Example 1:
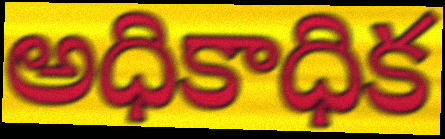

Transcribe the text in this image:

అధికాధిక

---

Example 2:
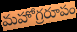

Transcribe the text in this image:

మహోగ్రరూపం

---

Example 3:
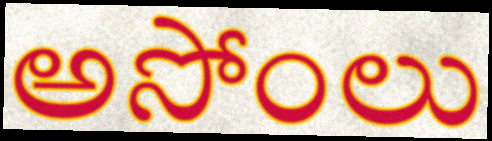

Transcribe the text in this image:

అసోంలు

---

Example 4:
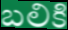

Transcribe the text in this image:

బలికి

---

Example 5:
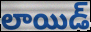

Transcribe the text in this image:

లాయిడ్